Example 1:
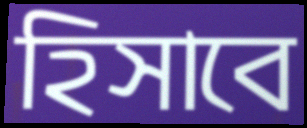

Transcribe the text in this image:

হিসাবে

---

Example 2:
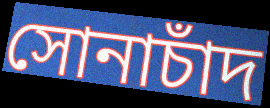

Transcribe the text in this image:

সোনাচাঁদ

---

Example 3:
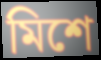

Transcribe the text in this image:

মিশে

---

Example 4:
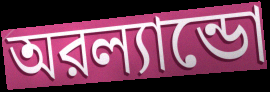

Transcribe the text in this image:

অরল্যান্ডো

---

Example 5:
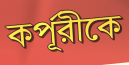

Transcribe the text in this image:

কর্পূরীকে